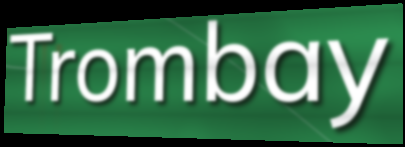
Trombay